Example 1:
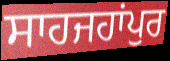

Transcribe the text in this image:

ਸਾਹਜਹਾਂਪੁਰ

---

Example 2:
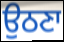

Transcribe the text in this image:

ਉਠਣਾ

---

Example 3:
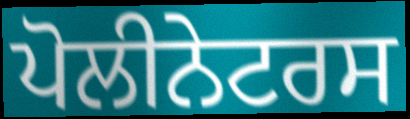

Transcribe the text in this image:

ਪੋਲੀਨੇਟਰਸ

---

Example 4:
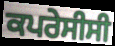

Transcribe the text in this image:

ਕਪਰੇਸੀਸੀ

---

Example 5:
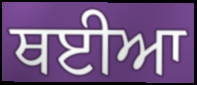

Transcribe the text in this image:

ਥਈਆ